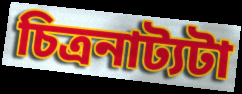
চিত্রনাট্যটা